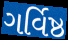
ગર્વિષ્ઠ